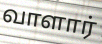
வாளார்